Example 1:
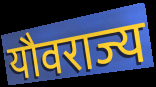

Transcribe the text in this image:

यौवराज्य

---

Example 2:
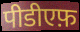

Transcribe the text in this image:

पीडीएफ़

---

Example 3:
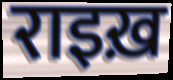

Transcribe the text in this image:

राइख़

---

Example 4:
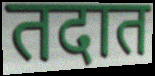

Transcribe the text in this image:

तदात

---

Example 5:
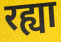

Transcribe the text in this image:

रह्या